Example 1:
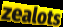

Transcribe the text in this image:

zealots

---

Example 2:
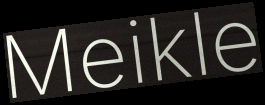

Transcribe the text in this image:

Meikle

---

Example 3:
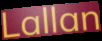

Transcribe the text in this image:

Lallan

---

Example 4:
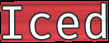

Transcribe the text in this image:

Iced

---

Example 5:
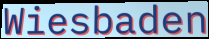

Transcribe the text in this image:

Wiesbaden